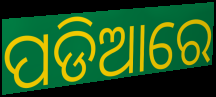
ପଡିଆରେ